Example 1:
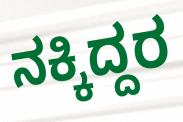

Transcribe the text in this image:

ನಕ್ಕಿದ್ದರ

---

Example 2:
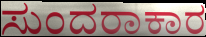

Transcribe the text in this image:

ಸುಂದರಾಕಾರ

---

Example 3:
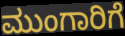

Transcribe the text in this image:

ಮುಂಗಾರಿಗೆ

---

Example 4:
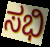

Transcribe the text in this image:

ಸಭಿ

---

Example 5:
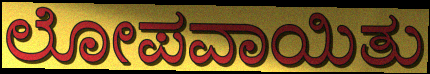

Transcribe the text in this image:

ಲೋಪವಾಯಿತು